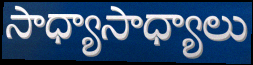
సాధ్యాసాధ్యాలు